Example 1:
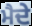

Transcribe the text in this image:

ਮੈਦੇ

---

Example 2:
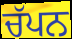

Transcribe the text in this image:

ਚੱਪਨ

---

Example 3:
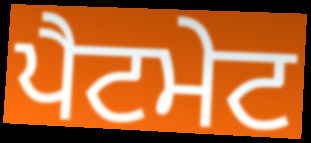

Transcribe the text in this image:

ਪੈਟਮੇਟ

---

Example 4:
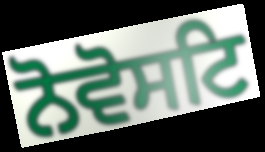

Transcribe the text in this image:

ਨੋਵੋਸਟਿ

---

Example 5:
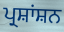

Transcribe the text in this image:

ਪ੍ਰਸ਼ਾਂਸ਼ਨ